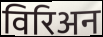
विरिअन